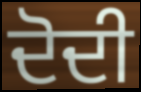
ਦੋਦੀ